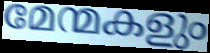
മേന്മകളും